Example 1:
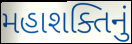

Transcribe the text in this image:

મહાશક્તિનું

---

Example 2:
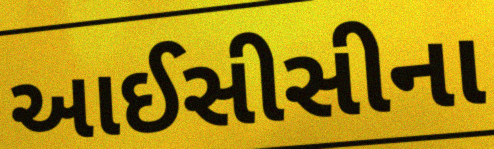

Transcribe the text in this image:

આઈસીસીના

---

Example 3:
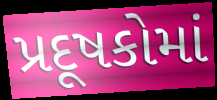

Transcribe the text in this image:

પ્રદૂષકોમાં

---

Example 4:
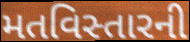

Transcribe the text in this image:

મતવિસ્તારની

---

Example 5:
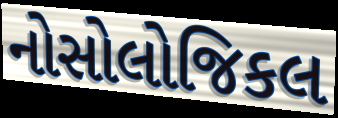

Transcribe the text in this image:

નોસોલોજિકલ